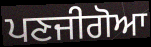
ਪਣਜੀਗੋਆ